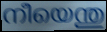
നീയെന്തു